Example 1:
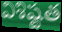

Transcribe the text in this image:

విశిష్టత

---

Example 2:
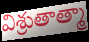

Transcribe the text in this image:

విశ్రుతాత్మా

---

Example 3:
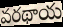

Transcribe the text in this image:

వరథాయ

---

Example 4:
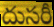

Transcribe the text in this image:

దుసరీ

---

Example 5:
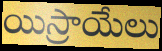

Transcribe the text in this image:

యిస్రాయేలు